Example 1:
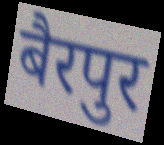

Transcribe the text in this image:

बैरपुर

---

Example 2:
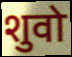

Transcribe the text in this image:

शुवो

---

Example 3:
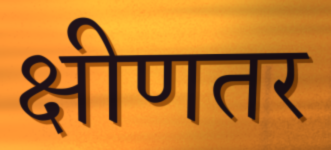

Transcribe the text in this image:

क्षीणतर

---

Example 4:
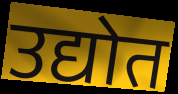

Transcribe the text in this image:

उद्योत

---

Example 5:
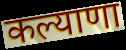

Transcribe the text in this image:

कल्याणा